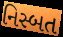
નિસ્બત